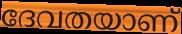
ദേവതയാണ്